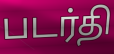
படர்தி